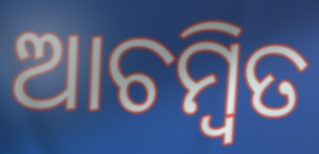
ଆଚମ୍ବିତ